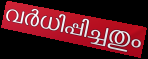
വർധിപ്പിച്ചതും